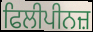
ਫਿਲੀਪੀਨਜ਼